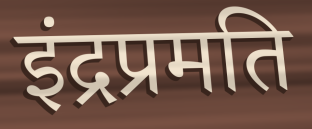
इंद्रप्रमति